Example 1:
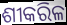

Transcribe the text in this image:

ଶୀକରିଳ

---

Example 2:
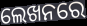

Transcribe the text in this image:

ଲେଖନରେ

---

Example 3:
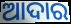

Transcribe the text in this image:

ଆଦାର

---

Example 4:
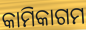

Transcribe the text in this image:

କାମିକାଗମ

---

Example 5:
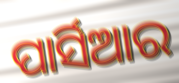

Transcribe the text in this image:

ପାର୍ସିଆର